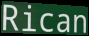
Rican